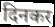
दिनकर